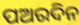
ପଅରଦିନ